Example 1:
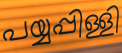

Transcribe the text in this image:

പയ്യപ്പിള്ളി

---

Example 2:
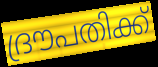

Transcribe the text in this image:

ദ്രൗപതിക്ക്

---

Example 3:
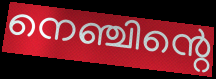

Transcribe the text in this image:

നെഞ്ചിന്റെ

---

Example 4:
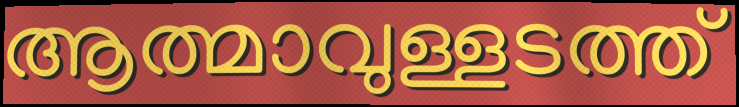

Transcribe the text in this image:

ആത്മാവുള്ളടത്ത്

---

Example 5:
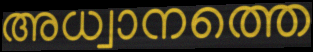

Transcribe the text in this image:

അധ്വാനത്തെ